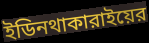
ইডিনথাকারাইয়ের